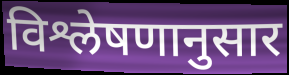
विश्लेषणानुसार